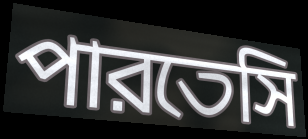
পারতেসি